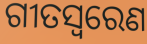
ଗୀତସ୍ବରେଣ